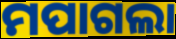
ମପାଗଲା